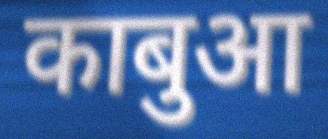
काबुआ